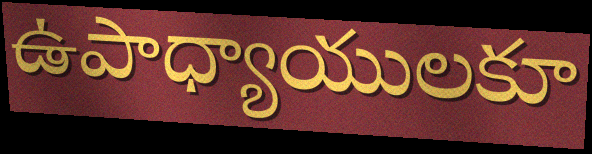
ఉపాధ్యాయులకూ